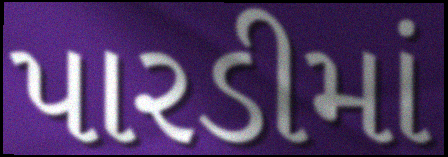
પારડીમાં